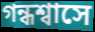
গন্ধশ্বাসে